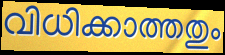
വിധിക്കാത്തതും